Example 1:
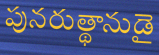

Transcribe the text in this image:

పునరుత్థానుడై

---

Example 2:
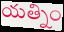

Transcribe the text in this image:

యత్నిం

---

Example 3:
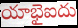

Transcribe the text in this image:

యాభైఐదు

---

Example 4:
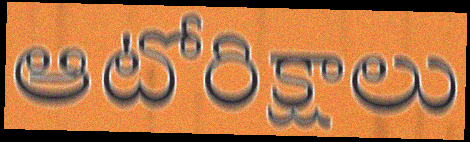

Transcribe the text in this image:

ఆటోరిక్షాలు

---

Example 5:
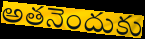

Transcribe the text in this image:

అతనెందుకు